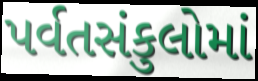
પર્વતસંકુલોમાં